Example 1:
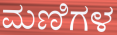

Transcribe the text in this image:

ಮಣಿಗಳ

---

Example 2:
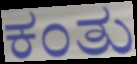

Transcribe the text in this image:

ಕಂತು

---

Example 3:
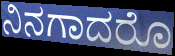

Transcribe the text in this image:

ನಿನಗಾದರೊ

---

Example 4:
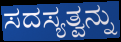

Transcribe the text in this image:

ಸದಸ್ಯತ್ವನ್ನು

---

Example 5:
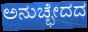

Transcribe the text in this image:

ಅನುಚ್ಛೇದದ